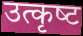
उत्‍कृष्‍ट